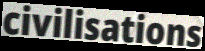
civilisations